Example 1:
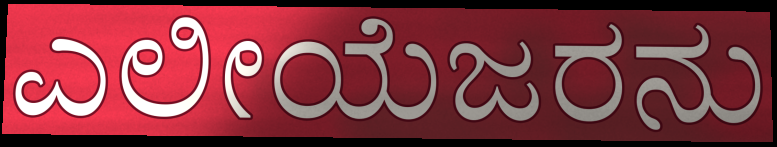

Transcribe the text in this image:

ಎಲೀಯೆಜರನು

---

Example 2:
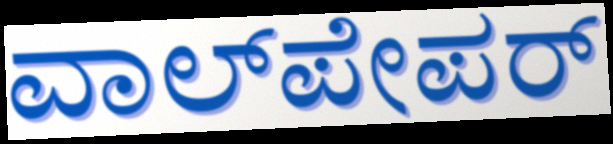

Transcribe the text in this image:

ವಾಲ್‌ಪೇಪರ್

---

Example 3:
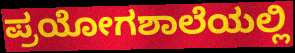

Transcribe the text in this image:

ಪ್ರಯೋಗಶಾಲೆಯಲ್ಲಿ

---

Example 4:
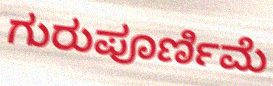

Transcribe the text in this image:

ಗುರುಪೂರ್ಣಿಮೆ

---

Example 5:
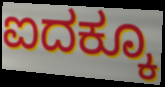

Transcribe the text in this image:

ಐದಕ್ಕೂ